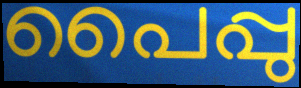
പൈപ്പു